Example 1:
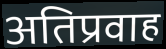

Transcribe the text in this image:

अतिप्रवाह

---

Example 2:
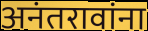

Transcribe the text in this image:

अनंतरावांना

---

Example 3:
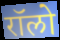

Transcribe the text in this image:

रॉलो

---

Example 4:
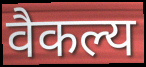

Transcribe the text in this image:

वैकल्य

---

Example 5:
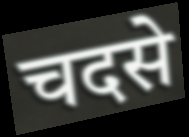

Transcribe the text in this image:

चदसे